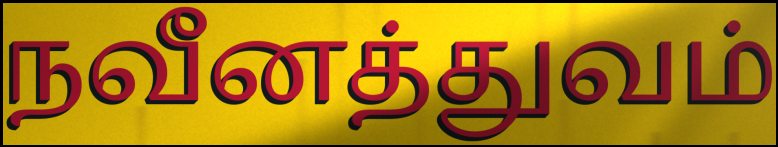
நவீனத்துவம்